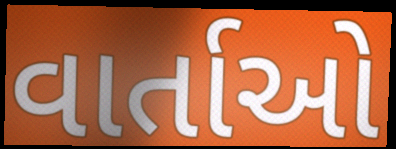
વાર્તાઓ